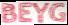
BEYG